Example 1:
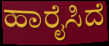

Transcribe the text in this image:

ಹಾರೈಸಿದೆ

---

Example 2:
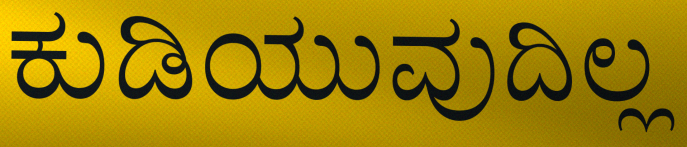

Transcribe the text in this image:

ಕುಡಿಯುವುದಿಲ್ಲ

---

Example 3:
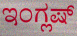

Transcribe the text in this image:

ಇಂಗ್ಲಷ್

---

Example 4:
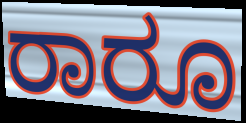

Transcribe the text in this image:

ರಾರೂ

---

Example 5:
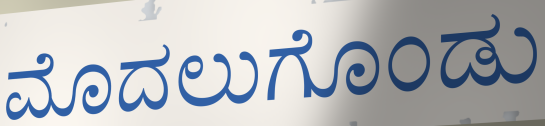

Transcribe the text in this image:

ಮೊದಲುಗೊಂಡು